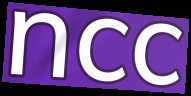
ncc